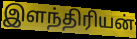
இளந்திரியன்